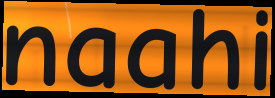
naahi